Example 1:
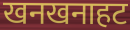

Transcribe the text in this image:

खनखनाहट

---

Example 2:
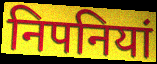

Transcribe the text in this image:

निपनियां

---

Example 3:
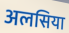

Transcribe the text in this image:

अलसिया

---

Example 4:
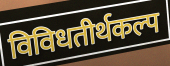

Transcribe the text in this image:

विविधतीर्थकल्प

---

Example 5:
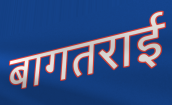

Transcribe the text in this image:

बागतराई